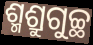
ଶ୍ମଶ୍ରୁଗୁଚ୍ଛ